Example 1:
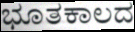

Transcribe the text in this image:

ಭೂತಕಾಲದ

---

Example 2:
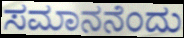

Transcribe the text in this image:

ಸಮಾನನೆಂದು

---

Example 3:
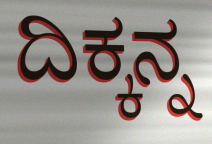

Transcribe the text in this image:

ದಿಕ್ಕನ್ನ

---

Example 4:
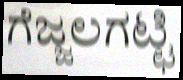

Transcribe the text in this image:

ಗೆಜ್ಜಲಗಟ್ಟಿ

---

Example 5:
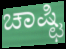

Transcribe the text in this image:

ಚಾಷ್ಟಿ